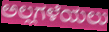
ಅಲ್ಲಗಳೆಯಲು